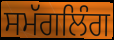
ਸਮੱਗਲਿੰਗ